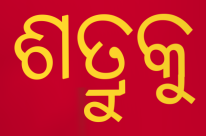
ଶତ୍ରୁକୁ